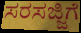
ಸರಸಜ್ಜಿಗೆ